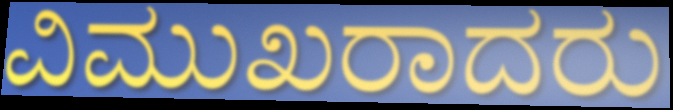
ವಿಮುಖರಾದರು